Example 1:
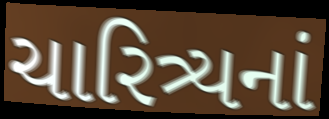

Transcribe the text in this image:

ચારિત્ર્યનાં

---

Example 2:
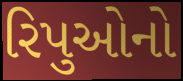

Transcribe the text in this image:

રિપુઓનો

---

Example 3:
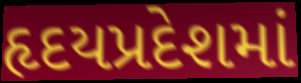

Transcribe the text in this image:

હૃદયપ્રદેશમાં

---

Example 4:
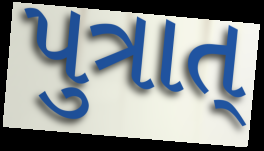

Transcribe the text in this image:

પુત્રાત્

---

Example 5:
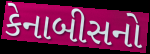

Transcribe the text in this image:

કેનાબીસનો